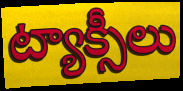
ట్యాక్సీలు